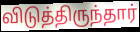
விடுத்திருந்தார்